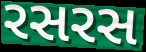
રસરસ